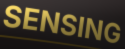
SENSING